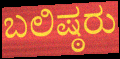
ಬಲಿಷ್ಠರು